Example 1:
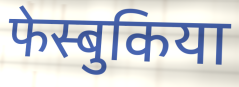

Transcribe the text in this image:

फेस्बुकिया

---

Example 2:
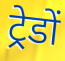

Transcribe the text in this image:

ट्रेडों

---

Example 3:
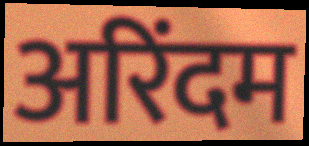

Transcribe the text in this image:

अरिंदम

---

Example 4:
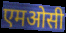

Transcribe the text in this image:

एमओसी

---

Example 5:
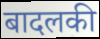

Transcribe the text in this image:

बादलकी